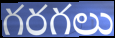
గరగలు